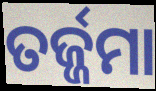
ତର୍ଜ୍ଜମା